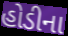
હોડીના